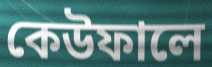
কেউফালে